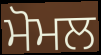
ਮੋਮਲ